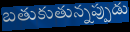
బతుకుతున్నప్పుడు